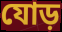
যোড়